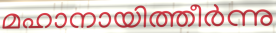
മഹാനായിത്തീർന്നു